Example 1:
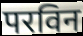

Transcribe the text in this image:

परविन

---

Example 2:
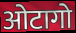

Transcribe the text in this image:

ओटागो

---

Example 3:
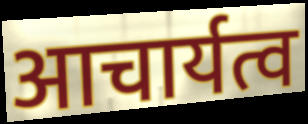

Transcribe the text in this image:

आचार्यत्व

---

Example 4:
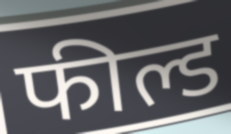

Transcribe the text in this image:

फील्‍ड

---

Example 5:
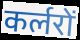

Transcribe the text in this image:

कर्लरों